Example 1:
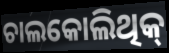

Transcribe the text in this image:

ଚାଲକୋଲିଥିକ୍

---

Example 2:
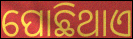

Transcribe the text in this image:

ପୋଛିଥାଏ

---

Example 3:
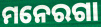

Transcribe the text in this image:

ମନେରଗା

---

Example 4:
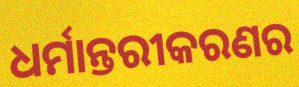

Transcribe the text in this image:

ଧର୍ମାନ୍ତରୀକରଣର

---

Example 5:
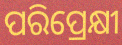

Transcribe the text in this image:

ପରିପ୍ରେକ୍ଷୀ